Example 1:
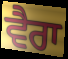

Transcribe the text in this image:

ਵੈਰਾ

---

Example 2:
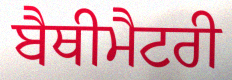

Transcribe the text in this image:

ਬੈਥੀਮੈਟਰੀ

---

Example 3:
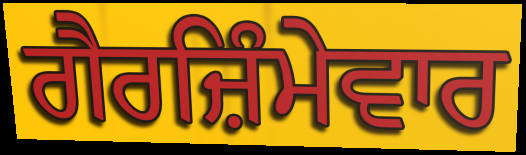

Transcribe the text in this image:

ਗੈਰਜ਼ਿੰਮੇਵਾਰ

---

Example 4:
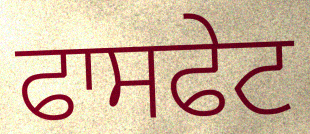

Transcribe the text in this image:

ਫਾਸਫੇਟ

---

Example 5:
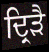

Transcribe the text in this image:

ਦ੍ਰਿੜੈ